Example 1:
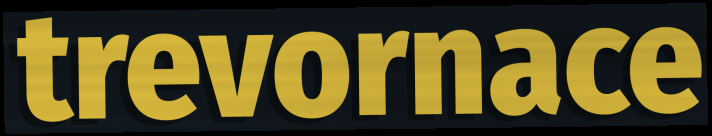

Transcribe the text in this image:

trevornace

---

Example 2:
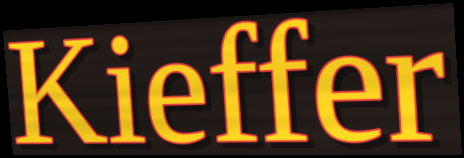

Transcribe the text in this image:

Kieffer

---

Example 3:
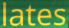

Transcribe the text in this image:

lates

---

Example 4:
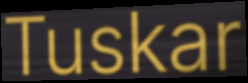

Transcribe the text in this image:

Tuskar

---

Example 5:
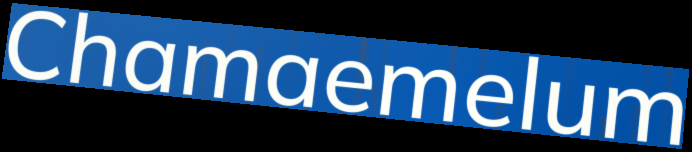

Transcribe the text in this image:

Chamaemelum